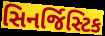
સિનર્જિસ્ટિક